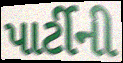
પાર્ટીની